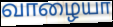
வாழையா